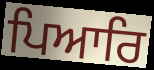
ਪਿਆਰਿ